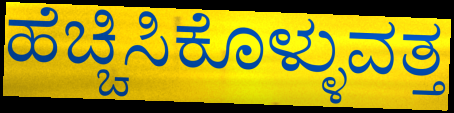
ಹೆಚ್ಚಿಸಿಕೊಳ್ಳುವತ್ತ